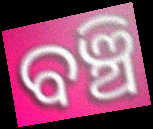
ବଞ୍ଚି